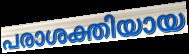
പരാശക്തിയായ